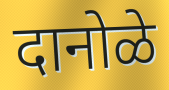
दानोळे